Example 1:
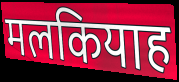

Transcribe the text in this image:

मलकियाह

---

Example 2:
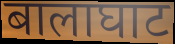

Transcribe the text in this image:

बालाघाट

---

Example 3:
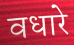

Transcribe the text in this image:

वधारे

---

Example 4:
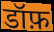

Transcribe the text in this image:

डॉफ़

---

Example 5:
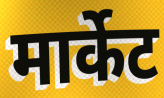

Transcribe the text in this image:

मार्केट